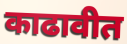
काढावीत